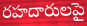
రహదారులపై